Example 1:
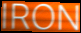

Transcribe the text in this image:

IRON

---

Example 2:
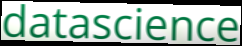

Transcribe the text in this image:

datascience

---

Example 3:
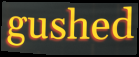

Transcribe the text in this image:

gushed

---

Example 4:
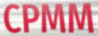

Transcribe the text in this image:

CPMM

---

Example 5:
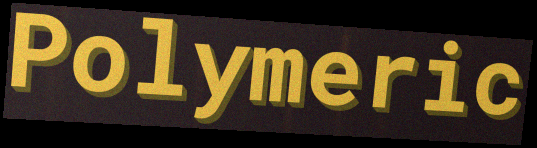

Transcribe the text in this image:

Polymeric